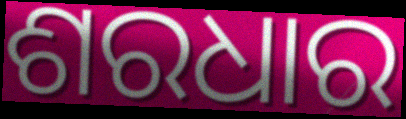
ଶରଧାର